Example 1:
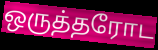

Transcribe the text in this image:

ஒருத்தரோட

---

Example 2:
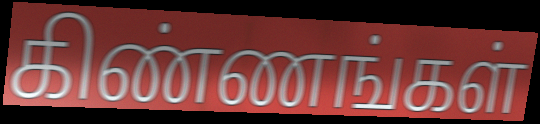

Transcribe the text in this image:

கிண்ணங்கள்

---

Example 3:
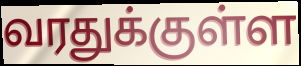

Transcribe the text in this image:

வரதுக்குள்ள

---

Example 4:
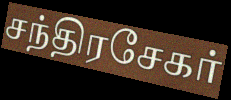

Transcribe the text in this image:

சந்திரசேகர்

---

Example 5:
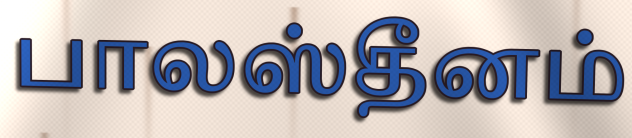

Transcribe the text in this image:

பாலஸ்தீனம்